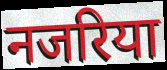
नजरिया